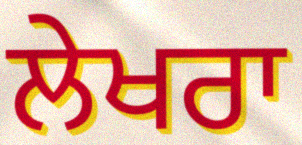
ਲੇਖਰਾ